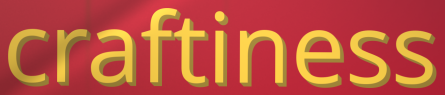
craftiness